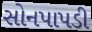
સોનપાપડી